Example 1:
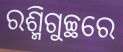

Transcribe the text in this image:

ରଶ୍ମିଗୁଚ୍ଛରେ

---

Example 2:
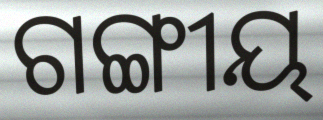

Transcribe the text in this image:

ଗଙ୍ଗୀୟ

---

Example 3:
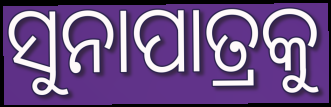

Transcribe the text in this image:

ସୁନାପାତ୍ରକୁ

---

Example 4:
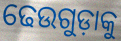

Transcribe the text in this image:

ଢେଉଗୁଡ଼ାକୁ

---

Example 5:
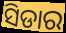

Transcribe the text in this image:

ସିଡାର